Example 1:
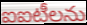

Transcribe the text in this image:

ఐఐటీలను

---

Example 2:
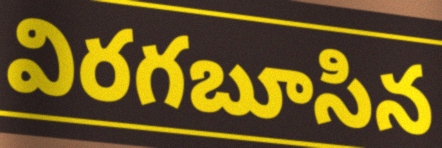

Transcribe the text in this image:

విరగబూసిన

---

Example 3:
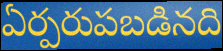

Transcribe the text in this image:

ఏర్పరుపబడినది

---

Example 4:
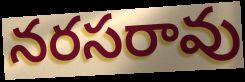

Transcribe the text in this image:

నరసరావు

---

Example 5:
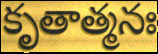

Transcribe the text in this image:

కృతాత్మనః